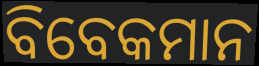
ବିବେକମାନ